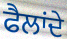
ਫੈਲਾਂਦੇ